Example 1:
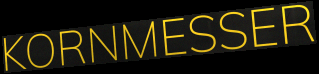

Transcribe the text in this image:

KORNMESSER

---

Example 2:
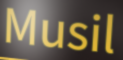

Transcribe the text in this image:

Musil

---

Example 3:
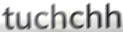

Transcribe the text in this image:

tuchchh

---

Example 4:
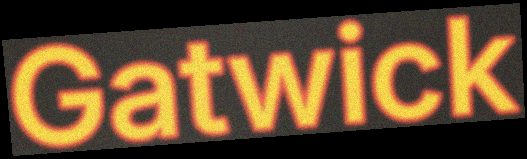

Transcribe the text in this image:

Gatwick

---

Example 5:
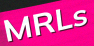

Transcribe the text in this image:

MRLs